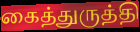
கைத்துருத்தி